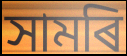
সামৰি